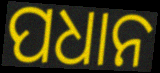
ପଧାନ